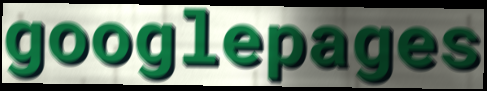
googlepages